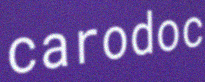
carodoc